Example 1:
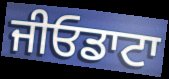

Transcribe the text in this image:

ਜੀਓਡਾਟਾ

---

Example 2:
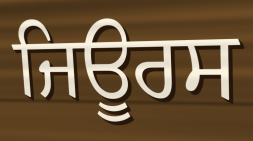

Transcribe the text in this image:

ਜਿਊਰਸ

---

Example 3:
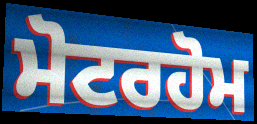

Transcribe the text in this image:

ਮੋਟਰਹੋਮ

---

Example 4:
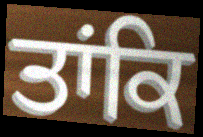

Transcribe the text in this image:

ਤਾਂਕਿ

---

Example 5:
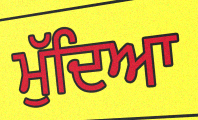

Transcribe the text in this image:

ਮੁੱਦਿਆ